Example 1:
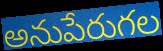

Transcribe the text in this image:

అనుపేరుగల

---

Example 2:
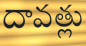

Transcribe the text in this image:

దావత్లు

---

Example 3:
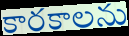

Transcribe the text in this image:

కారకాలను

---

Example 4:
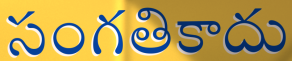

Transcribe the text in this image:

సంగతికాదు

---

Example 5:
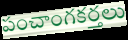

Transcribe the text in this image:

పంచాంగకర్తలు